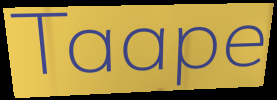
Taape